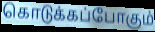
கொடுக்கப்போகும்